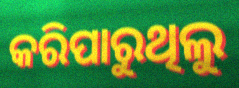
କରିପାରୁଥିଲୁ